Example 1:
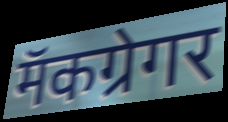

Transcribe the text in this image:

मॅकग्रेगर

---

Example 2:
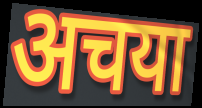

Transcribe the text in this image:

अचया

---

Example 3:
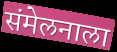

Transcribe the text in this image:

संमेलनाला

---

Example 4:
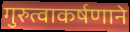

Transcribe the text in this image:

गुरुत्वाकर्षणाने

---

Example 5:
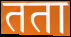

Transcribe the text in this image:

तता